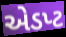
એડપ્ટ